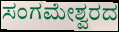
ಸಂಗಮೇಶ್ವರದ